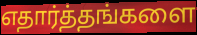
எதார்த்தங்களை